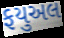
ફયુઅલ